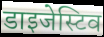
डाइजेस्टिव